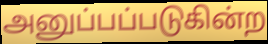
அனுப்பப்படுகின்ற